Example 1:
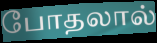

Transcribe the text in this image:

போதலால்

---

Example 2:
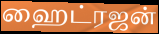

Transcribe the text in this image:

ஹைட்ரஜன்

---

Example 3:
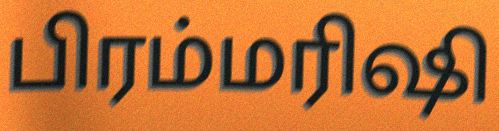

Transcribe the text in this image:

பிரம்மரிஷி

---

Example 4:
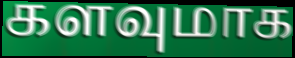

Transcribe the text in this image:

களவுமாக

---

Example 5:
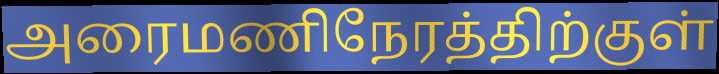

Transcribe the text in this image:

அரைமணிநேரத்திற்குள்